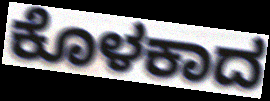
ಕೊಳಕಾದ